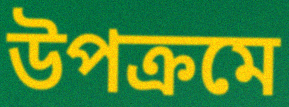
উপক্রমে